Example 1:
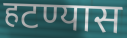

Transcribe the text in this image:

हटण्यास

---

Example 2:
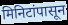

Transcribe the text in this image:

मिनिटांपासून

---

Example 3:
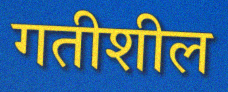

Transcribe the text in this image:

गतीशील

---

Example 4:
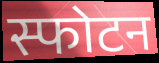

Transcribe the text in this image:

स्फोटन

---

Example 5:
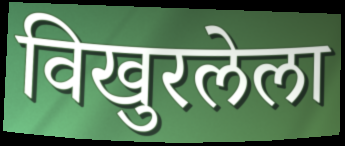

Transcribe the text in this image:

विखुरलेला